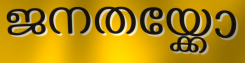
ജനതയ്ക്കോ